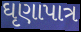
ઘૃણાપાત્ર